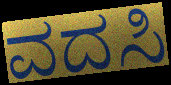
ವದಸಿ